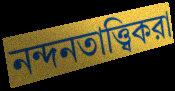
নন্দনতাত্ত্বিকরা